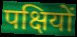
पक्षियों